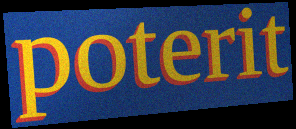
poterit